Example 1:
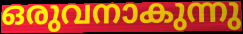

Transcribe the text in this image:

ഒരുവനാകുന്നു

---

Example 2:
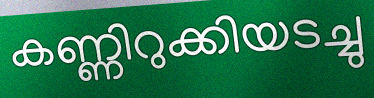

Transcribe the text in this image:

കണ്ണിറുക്കിയടച്ചു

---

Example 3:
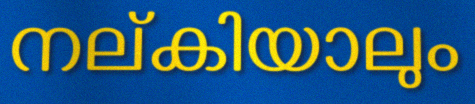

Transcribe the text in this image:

നല്‌കിയാലും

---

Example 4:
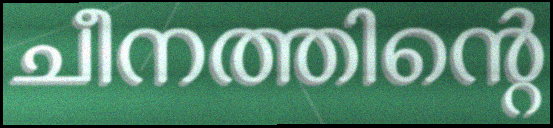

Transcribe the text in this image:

ചീനത്തിന്റെ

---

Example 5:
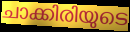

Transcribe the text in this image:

ചാക്കിരിയുടെ